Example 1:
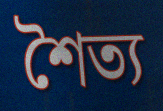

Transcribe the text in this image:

শৈত্য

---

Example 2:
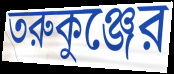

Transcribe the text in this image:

তরুকুঞ্জের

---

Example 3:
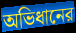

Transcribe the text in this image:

অভিধানের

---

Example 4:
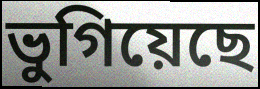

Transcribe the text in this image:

ভুগিয়েছে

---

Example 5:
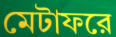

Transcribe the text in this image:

মেটাফরে